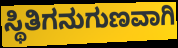
ಸ್ಥಿತಿಗನುಗುಣವಾಗಿ